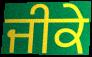
ਜੀਕੇ